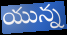
యున్న